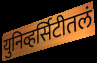
युनिव्हर्सिटीतलं